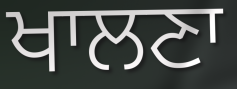
ਖਾਲਣਾ